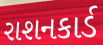
રાશનકાર્ડ